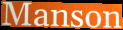
Manson